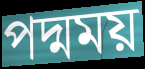
পদ্মময়